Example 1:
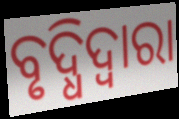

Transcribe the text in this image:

ବୃଦ୍ଧିଦ୍ୱାରା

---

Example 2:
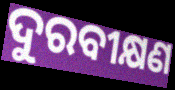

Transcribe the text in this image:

ଦୁରବୀକ୍ଷଣ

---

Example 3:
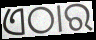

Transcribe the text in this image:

ଏଠାର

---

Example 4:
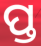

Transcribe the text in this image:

ପ୍ତ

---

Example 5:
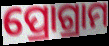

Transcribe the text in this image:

ପ୍ରୋଗ୍ରାମ